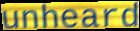
unheard